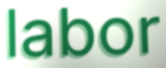
labor